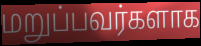
மறுப்பவர்களாக